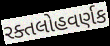
રક્તલોહવર્ણક